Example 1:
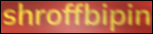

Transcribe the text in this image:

shroffbipin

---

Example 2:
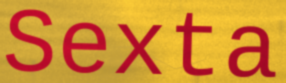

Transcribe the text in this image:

Sexta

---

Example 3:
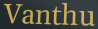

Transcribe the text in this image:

Vanthu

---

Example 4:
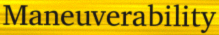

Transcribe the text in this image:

Maneuverability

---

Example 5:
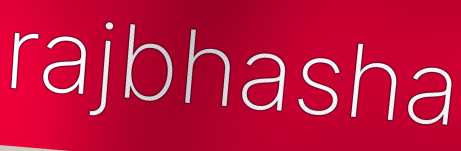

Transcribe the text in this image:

rajbhasha